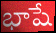
భాషే